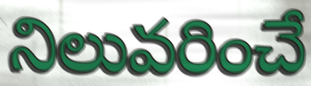
నిలువరించే